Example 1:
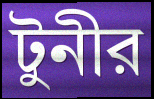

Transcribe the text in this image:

টুনীর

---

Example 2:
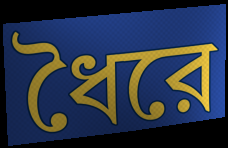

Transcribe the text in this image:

ধৈরে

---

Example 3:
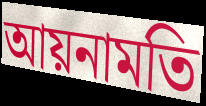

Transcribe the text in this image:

আয়নামতি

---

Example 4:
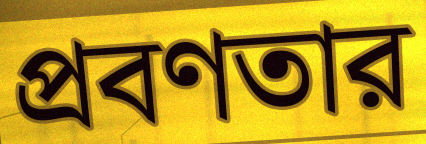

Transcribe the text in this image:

প্রবণতার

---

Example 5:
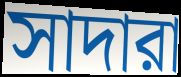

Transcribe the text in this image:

সাদারা